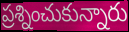
ప్రశ్నించుకున్నారు